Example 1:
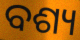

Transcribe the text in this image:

ବଶ୍ୟ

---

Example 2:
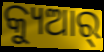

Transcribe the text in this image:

କ୍ୟୁଆର୍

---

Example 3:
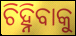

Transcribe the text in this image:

ଚିହ୍ନିବାକୁ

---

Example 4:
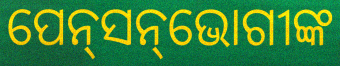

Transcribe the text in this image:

ପେନ୍‌ସନ୍‌ଭୋଗୀଙ୍କ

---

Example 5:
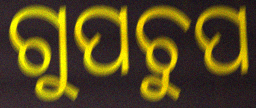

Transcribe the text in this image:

ଗୁପଚୁପ